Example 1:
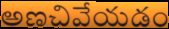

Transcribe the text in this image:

అణచివేయడం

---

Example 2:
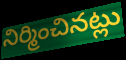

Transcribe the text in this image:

నిర్మించినట్లు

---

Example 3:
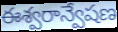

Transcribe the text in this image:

ఈశ్వరాన్వేషణ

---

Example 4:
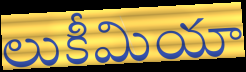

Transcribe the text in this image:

లుకీమియా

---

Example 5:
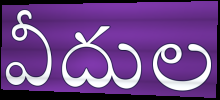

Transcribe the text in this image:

వీదుల